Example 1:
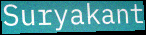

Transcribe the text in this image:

Suryakant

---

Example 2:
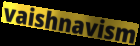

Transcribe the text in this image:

vaishnavism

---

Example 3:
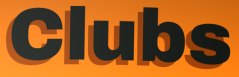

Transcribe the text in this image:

Clubs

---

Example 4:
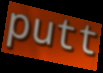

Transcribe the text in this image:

putt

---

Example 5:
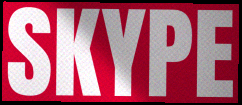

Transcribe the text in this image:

SKYPE